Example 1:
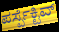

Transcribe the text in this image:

ಪರ್ಸ್ಪೆಕ್ಟಿವ್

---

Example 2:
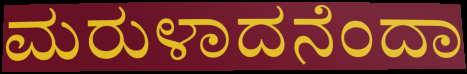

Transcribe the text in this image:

ಮರುಳಾದನೆಂದಾ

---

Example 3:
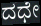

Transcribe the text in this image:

ದಧೇ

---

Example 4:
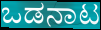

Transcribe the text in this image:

ಒಡನಾಟ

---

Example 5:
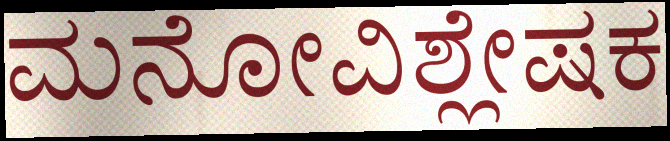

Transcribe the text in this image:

ಮನೋವಿಶ್ಲೇಷಕ